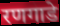
रणगाडे